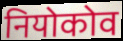
नियोकोव